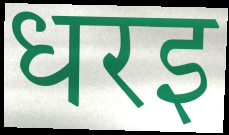
धरइ